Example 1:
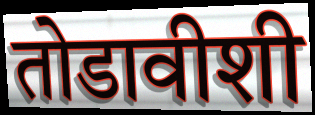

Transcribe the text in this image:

तोडावीशी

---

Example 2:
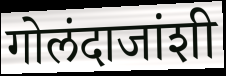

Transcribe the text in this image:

गोलंदाजांशी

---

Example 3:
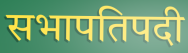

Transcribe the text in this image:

सभापतिपदी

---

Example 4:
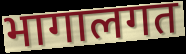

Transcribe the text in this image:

भागालगत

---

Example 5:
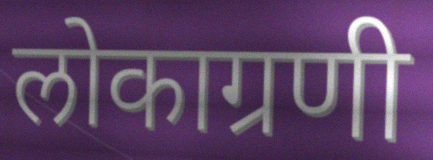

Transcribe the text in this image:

लोकाग्रणी